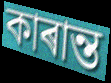
কাৰান্ত